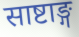
साष्टाङ्ग